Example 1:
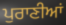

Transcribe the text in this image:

ਪੁਰਾਣੀਆਂ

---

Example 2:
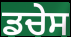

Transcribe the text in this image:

ਡਚੇਸ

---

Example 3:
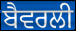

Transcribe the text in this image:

ਬੈਵਰਲੀ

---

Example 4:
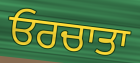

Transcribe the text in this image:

ਓਰਚਾਤਾ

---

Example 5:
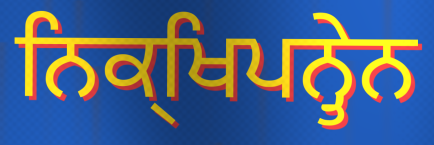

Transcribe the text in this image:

ਨਿਕ੍ਖਿਪਨ੍ਤੇਨ